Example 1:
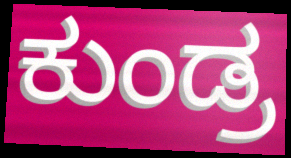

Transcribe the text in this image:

ಕುಂಡ್ರ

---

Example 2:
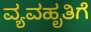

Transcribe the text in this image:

ವ್ಯವಹೃತಿಗೆ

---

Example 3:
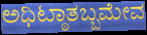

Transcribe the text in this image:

ಅಧಿಟ್ಠಾತಬ್ಬಮೇವ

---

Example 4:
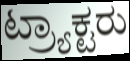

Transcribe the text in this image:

ಟ್ರ್ಯಾಕ್ಟರು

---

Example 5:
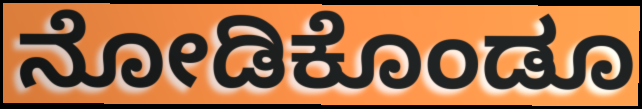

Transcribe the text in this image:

ನೋಡಿಕೊಂಡೂ